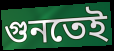
গুনতেই